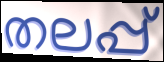
തലപ്പ്